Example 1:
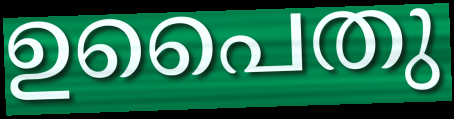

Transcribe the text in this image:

ഉപൈതു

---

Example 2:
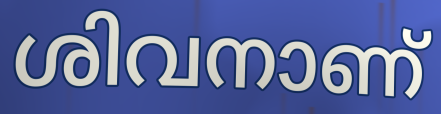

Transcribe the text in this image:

ശിവനാണ്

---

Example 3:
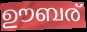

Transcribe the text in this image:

ഊബര്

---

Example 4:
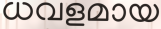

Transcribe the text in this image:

ധവളമായ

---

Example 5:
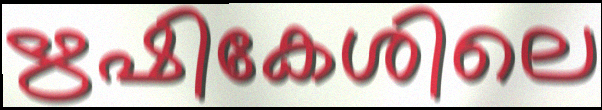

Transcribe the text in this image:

ഋഷികേശിലെ